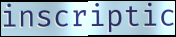
inscriptic